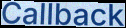
Callback